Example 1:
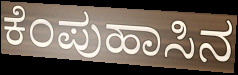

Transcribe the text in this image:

ಕೆಂಪುಹಾಸಿನ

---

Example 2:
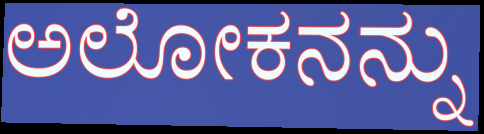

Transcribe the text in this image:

ಅಲೋಕನನ್ನು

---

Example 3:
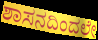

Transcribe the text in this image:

ಶಾಸನದಿಂದಲೇ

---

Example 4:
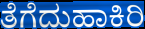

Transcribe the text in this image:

ತೆಗೆದುಹಾಕಿರಿ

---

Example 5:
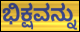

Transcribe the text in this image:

ಭಿಕ್ಷವನ್ನು